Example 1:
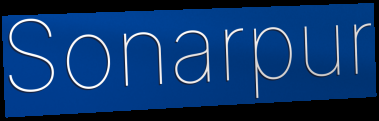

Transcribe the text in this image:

Sonarpur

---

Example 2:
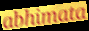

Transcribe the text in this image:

abhimata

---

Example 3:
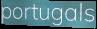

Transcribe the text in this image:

portugals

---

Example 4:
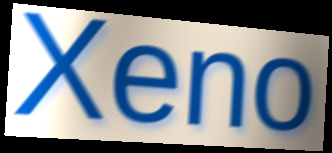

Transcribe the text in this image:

Xeno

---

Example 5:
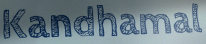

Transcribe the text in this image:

Kandhamal